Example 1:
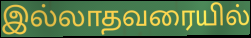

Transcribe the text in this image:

இல்லாதவரையில்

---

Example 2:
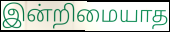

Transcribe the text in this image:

இன்றிமையாத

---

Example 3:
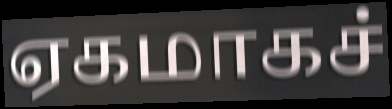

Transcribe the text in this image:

ஏகமாகச்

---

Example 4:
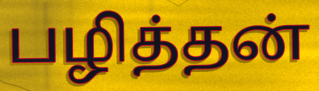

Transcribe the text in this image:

பழித்தன்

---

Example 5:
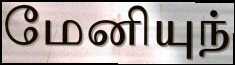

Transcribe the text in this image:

மேனியுந்